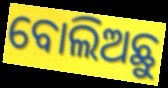
ବୋଲିଅଛୁ